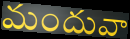
మందువా